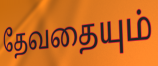
தேவதையும்